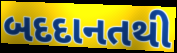
બદદાનતથી